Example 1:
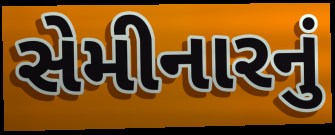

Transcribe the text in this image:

સેમીનારનું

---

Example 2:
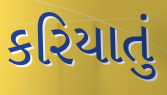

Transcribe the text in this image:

કરિયાતું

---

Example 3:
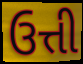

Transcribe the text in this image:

ઉત્તી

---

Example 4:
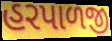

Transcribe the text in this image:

હરપાળજી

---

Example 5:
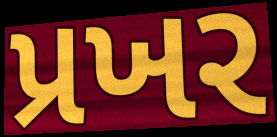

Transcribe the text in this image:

પ્રખર